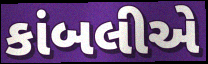
કાંબલીએ